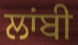
ਲਾਂਬੀ